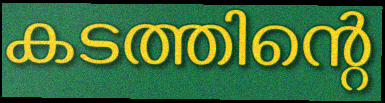
കടത്തിന്റെ